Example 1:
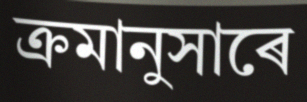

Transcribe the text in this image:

ক্ৰমানুসাৰে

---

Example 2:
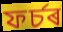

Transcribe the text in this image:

ফৰ্চৰ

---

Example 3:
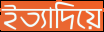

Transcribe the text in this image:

ইত্যাদিয়ে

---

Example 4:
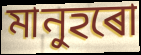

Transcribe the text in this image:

মানুহৰো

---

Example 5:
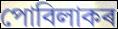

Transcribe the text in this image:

পোবিলাকৰ